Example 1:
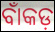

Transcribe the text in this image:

ବାଁକଡ଼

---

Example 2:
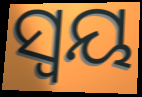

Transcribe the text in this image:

ସ୍ୱୟ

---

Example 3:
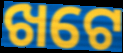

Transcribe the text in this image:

ଖଟେ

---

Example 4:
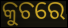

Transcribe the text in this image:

କୁଚରେ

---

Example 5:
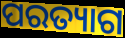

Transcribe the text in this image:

ପରତ୍ୟାଗ